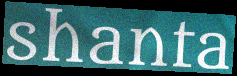
shanta